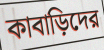
কাবাড়িদের